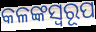
କଳଙ୍କସ୍ୱରୂପ